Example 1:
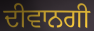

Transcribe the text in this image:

ਦੀਵਾਨਗੀ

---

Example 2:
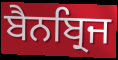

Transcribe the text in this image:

ਬੈਨਬ੍ਰਿਜ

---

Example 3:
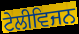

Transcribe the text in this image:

ਟੇਲੀਵਿਜਨ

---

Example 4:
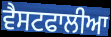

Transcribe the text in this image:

ਵੈਸਟਫਾਲੀਆ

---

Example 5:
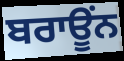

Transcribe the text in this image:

ਬਰਾਊਂਨ